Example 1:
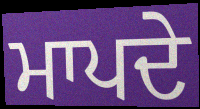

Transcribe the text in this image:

ਮਾਪਦੇ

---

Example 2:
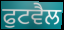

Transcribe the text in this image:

ਫੁਟਵੈਲ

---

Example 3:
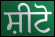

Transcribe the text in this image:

ਸ਼ੀਟੋ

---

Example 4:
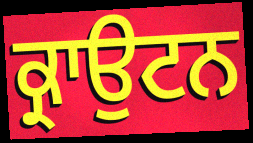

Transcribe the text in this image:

ਕ੍ਰਾਉਟਨ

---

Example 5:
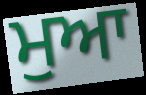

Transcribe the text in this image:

ਮੁਆ